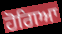
ਹੋਗਿਆ